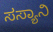
ಸಸ್ಯಾನಿ